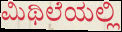
ಮಿಥಿಲೆಯಲ್ಲಿ